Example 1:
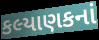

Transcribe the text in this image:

કલ્યાણકનાં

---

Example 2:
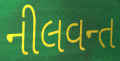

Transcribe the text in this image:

નીલવન્ત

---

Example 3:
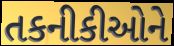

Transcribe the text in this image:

તકનીકીઓને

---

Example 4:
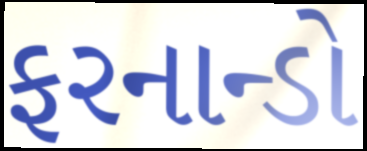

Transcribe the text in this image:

ફરનાન્ડો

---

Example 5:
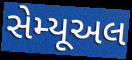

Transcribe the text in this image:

સેમ્યૂઅલ